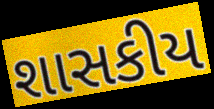
શાસકીય